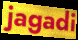
jagadi